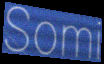
Somi